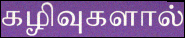
கழிவுகளால்